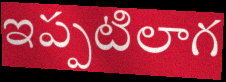
ఇప్పటిలాగ